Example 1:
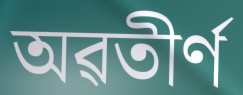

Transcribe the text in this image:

অৱতীৰ্ণ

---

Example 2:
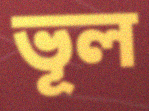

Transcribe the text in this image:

ভূল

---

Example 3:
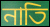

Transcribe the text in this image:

নাতি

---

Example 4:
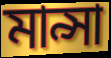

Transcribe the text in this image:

মান্সা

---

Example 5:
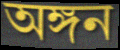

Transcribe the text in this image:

অঙ্গন